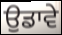
ਉਡਾਵੇ